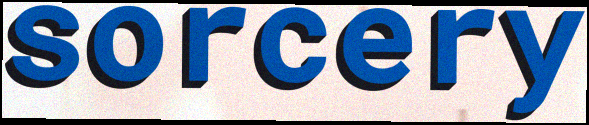
sorcery